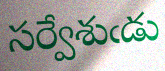
సర్వేశుఁడు